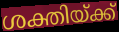
ശക്തിയ്ക്ക്